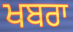
ਖਬਰਾ